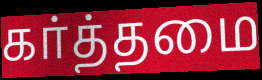
கர்த்தமை